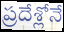
ప్రదేశ్లోనే